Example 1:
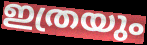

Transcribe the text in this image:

ഇത്രയും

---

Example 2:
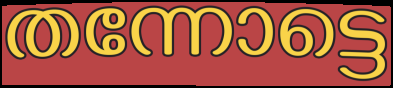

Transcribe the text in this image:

തന്നോട്ടെ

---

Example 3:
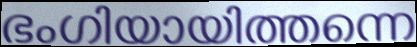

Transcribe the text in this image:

ഭംഗിയായിത്തന്നെ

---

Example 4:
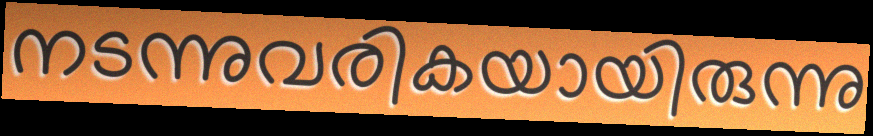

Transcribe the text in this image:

നടന്നുവരികയായിരുന്നു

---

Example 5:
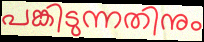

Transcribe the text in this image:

പങ്കിടുന്നതിനും